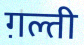
ग़ल्ती